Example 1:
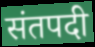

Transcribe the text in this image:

संतपदी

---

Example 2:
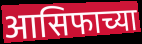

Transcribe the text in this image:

आसिफाच्या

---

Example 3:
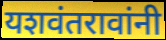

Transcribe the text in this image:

यशवंतरावांनी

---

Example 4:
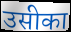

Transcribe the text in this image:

उसीका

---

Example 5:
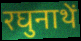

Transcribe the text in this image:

रघुनाथें